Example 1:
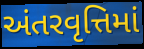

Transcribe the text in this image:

અંતરવૃત્તિમાં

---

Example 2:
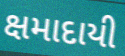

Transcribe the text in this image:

ક્ષમાદાયી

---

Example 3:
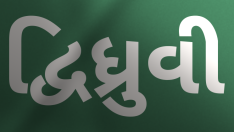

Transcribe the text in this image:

દ્વિધ્રુવી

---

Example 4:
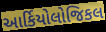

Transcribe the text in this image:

આર્કિયોલોજિકલ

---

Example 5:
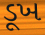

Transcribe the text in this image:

ડૂખ